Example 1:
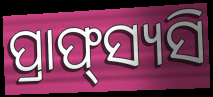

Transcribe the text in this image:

ପ୍ରାଫ୍‌ସ୍ୟସି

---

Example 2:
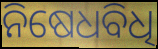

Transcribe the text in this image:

ନିଷେଧବିଧି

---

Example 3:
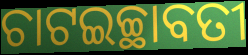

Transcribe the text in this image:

ଚାଟଇଚ୍ଛାବତୀ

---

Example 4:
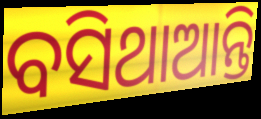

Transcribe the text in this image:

ବସିଥାଆନ୍ତି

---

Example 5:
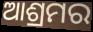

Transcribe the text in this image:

ଆଶ୍ରମର